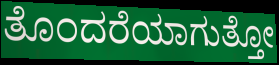
ತೊಂದರೆಯಾಗುತ್ತೋ